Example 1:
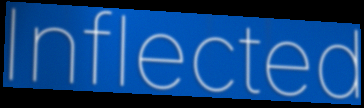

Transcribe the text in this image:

Inflected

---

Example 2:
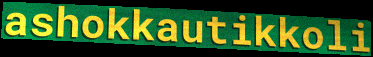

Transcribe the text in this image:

ashokkautikkoli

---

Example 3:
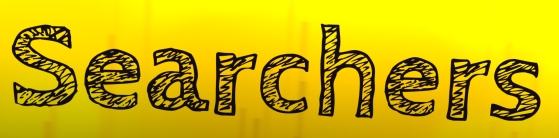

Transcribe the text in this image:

Searchers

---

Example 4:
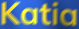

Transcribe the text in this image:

Katia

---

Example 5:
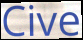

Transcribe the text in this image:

Cive